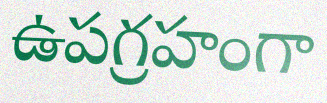
ఉపగ్రహంగా